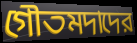
গৌতমদাদের